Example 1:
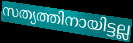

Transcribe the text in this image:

സത്യത്തിനായിട്ടല്ല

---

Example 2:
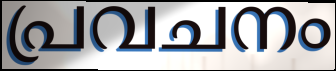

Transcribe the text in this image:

പ്രവചനം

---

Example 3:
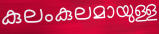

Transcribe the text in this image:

കുലംകുലമായുള്ള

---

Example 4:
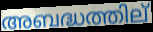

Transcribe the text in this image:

അബദ്ധത്തില്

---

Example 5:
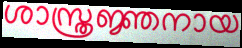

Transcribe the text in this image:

ശാസ്ത്രജ്ഞനായ